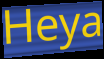
Heya